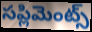
సప్లిమెంట్స్